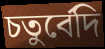
চতুর্বেদি